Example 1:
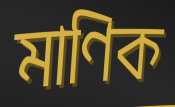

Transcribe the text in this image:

মাণিক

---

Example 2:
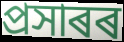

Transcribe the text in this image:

প্ৰসাৰৰ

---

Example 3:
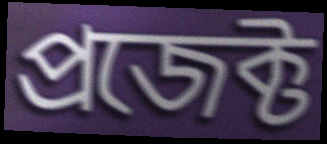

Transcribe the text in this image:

প্ৰজেক্ট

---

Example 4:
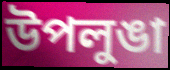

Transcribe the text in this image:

উপলুঙা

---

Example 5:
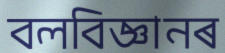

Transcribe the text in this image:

বলবিজ্ঞানৰ